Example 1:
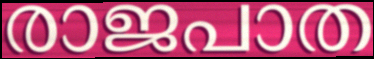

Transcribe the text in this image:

രാജപാത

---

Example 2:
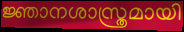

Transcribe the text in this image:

ജ്ഞാനശാസ്ത്രമായി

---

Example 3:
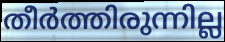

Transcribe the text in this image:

തീർത്തിരുന്നില്ല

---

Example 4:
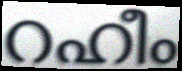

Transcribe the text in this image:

റഹീം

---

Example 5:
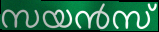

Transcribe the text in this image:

സയൻസ്